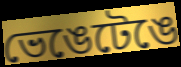
ভেঙেটেঙে